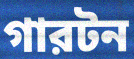
গারটন